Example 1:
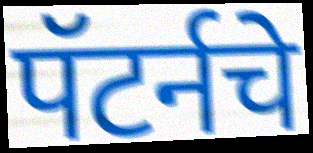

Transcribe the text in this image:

पॅटर्नचे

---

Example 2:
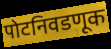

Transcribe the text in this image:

पोटनिवडणूक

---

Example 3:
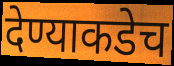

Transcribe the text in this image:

देण्याकडेच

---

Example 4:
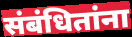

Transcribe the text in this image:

संबंधितांना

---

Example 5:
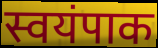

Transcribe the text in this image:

स्वयंपाक